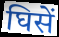
घिसें